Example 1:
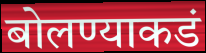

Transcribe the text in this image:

बोलण्याकडं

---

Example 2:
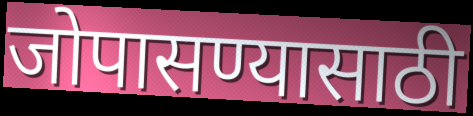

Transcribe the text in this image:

जोपासण्यासाठी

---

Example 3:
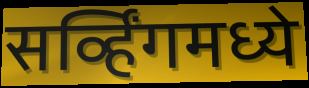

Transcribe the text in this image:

सर्व्हिंगमध्ये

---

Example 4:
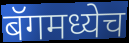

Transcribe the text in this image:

बॅगमध्येच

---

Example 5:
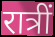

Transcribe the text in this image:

रात्रीं